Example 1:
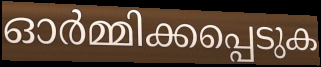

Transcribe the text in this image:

ഓർമ്മിക്കപ്പെടുക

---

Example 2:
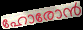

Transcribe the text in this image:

ഹോരോൻ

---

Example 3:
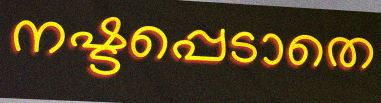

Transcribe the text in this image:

നഷ്ടപ്പെടാതെ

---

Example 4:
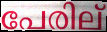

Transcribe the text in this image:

പേരില്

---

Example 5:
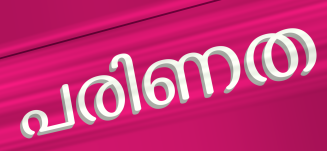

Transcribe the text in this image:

പരിണത